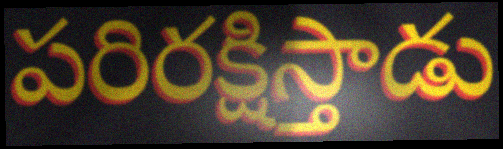
పరిరక్షిస్తాడు